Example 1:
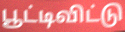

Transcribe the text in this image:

பூட்டிவிட்டு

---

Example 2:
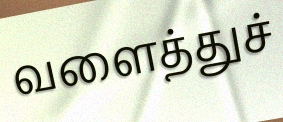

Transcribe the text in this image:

வளைத்துச்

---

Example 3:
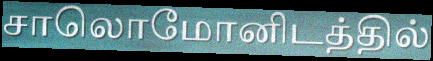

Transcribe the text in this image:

சாலொமோனிடத்தில்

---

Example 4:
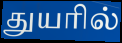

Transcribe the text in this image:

துயரில்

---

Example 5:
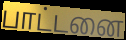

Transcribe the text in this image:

பாட்டனை